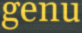
genu